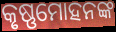
କୃଷ୍ଣମୋହନଙ୍କ